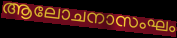
ആലോചനാസംഘം